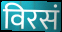
विरसं